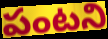
పంటని